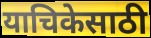
याचिकेसाठी